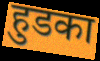
हुडका